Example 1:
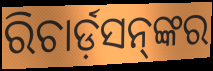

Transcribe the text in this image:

ରିଚାର୍ଡ଼ସନ୍‌ଙ୍କର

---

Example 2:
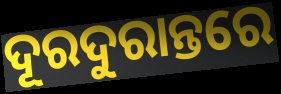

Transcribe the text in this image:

ଦୂରଦୁରାନ୍ତରେ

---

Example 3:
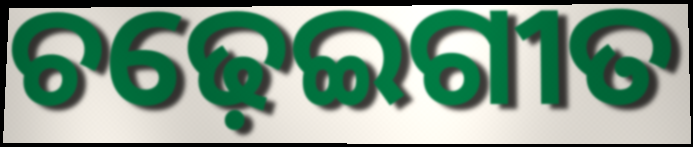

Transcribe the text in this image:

ଚଢ଼େଇଗୀତ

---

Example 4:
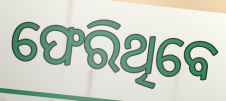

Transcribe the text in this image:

ଫେରିଥିବେ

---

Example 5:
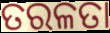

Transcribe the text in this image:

ତରଳତା